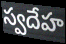
స్వదేహ